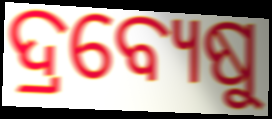
ଦ୍ରବ୍ୟେଷୁ